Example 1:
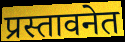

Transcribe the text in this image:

प्रस्तावनेत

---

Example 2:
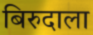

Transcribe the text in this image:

बिरुदाला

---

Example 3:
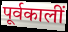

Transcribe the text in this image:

पूर्वकालीं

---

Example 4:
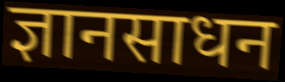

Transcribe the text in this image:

ज्ञानसाधन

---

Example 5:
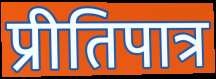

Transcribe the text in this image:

प्रीतिपात्र